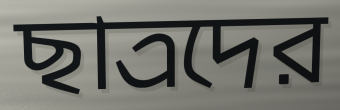
ছাত্রদের